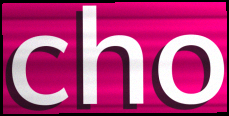
cho